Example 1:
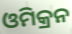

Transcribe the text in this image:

ଓମିକ୍ରନ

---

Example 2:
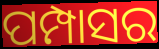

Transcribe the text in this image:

ପମ୍ପାସର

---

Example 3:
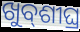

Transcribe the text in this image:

ଖୁବ୍‌ଶୀଘ୍ର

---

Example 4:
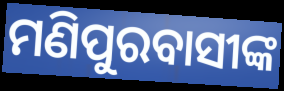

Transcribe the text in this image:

ମଣିପୁରବାସୀଙ୍କ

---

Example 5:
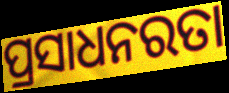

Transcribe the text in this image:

ପ୍ରସାଧନରତା